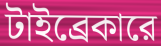
টাইব্রেকারে